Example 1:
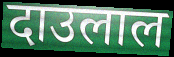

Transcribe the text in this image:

दाउलाल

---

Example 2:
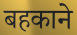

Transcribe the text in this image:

बहकाने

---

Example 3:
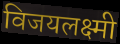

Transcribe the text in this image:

विजयलक्ष्मी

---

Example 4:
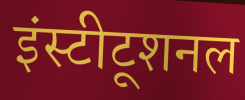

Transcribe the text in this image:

इंस्टीटूशनल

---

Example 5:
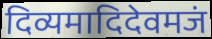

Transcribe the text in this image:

दिव्यमादिदेवमजं